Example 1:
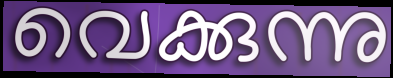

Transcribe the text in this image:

വെക്കുന്നു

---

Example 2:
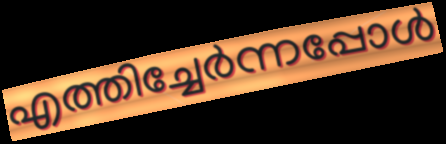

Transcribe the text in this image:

എത്തിച്ചേർന്നപ്പോൾ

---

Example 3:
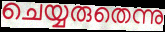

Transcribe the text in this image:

ചെയ്യരുതെന്നു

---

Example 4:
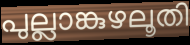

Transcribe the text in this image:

പുല്ലാങ്കുഴലൂതി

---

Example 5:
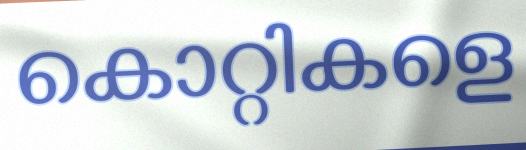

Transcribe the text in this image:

കൊറ്റികളെ